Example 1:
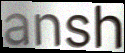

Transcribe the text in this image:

ansh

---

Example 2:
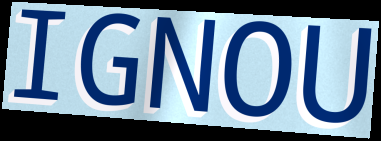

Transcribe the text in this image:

IGNOU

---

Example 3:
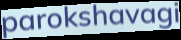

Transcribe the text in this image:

parokshavagi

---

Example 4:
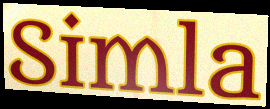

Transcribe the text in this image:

Simla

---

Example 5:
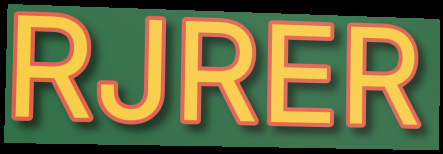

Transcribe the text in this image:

RJRER